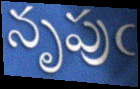
నృపుఁ